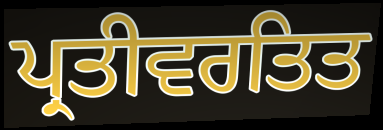
ਪ੍ਰਤੀਵਰਤਿਤ